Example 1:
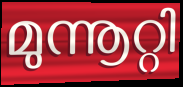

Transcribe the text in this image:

മുന്നൂറ്റി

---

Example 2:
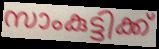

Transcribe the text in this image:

സാംകുട്ടിക്ക്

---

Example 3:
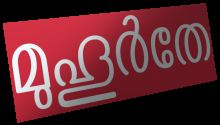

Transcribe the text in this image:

മുഹൂർതേ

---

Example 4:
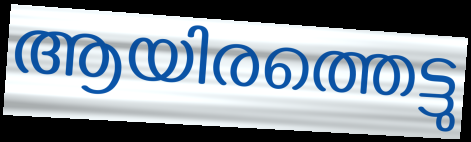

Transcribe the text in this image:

ആയിരത്തെട്ടു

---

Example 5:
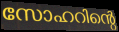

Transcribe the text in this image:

സോഹറിന്റെ